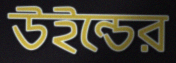
উইন্ডের